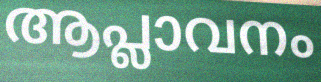
ആപ്ലാവനം